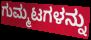
ಗುಮ್ಮಟಗಳನ್ನು